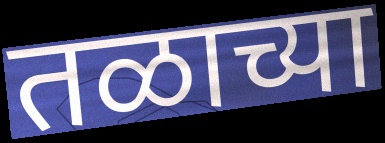
तळाच्या